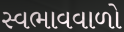
સ્વભાવવાળો